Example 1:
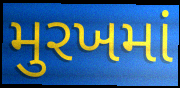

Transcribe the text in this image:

મુરખમાં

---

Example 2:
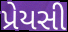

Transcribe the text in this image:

પ્રેયસી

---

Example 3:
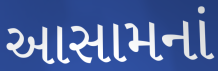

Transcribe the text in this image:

આસામનાં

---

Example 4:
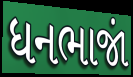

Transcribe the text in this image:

ધનભાજાં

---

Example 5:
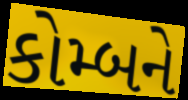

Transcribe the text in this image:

કોમ્બને